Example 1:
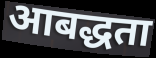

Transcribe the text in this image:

आबद्धता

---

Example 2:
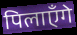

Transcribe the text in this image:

पिलाएँगे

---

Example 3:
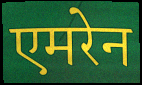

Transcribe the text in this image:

एमरेन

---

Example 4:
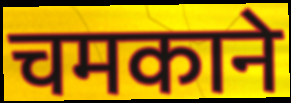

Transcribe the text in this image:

चमकाने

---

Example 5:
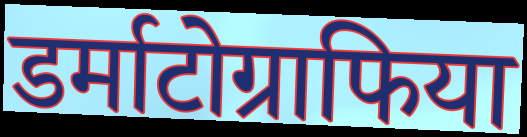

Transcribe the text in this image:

डर्माटोग्राफिया